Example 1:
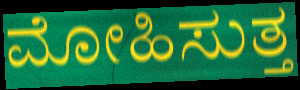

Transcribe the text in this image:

ಮೋಹಿಸುತ್ತ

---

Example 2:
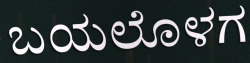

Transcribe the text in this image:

ಬಯಲೊಳಗ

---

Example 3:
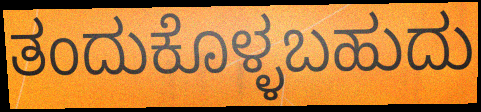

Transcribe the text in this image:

ತಂದುಕೊಳ್ಳಬಹುದು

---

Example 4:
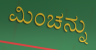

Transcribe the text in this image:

ಮಿಂಚನ್ನು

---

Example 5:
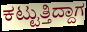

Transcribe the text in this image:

ಕಟ್ಟುತ್ತಿದ್ದಾಗ